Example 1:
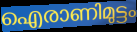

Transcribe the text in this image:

ഐരാണിമുട്ടം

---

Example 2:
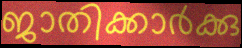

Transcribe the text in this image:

ജാതിക്കാർക്കു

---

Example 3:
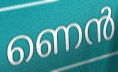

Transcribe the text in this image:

ണെൻ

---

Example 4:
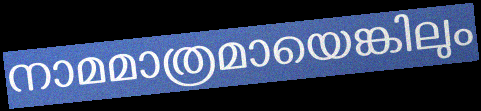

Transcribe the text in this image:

നാമമാത്രമായെങ്കിലും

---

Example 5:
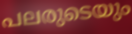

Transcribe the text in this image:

പലരുടെയും